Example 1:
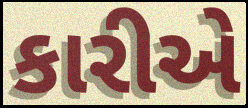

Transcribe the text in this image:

કારીએ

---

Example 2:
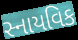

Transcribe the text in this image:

સ્નાયવિક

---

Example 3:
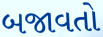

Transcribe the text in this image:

બજાવતો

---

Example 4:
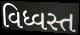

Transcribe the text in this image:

વિધ્વસ્ત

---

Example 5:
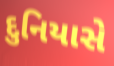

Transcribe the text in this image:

દુનિયાસે